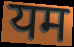
यम